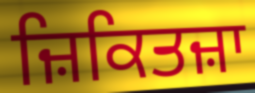
ਜ਼ਿਕਿਤਜ਼ਾ